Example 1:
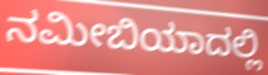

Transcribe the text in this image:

ನಮೀಬಿಯಾದಲ್ಲಿ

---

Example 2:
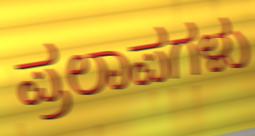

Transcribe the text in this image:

ಪ್ರಲಾಪಗಳು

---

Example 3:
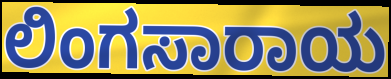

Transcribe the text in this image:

ಲಿಂಗಸಾರಾಯ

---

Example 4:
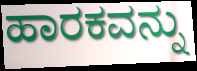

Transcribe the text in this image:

ಹಾರಕವನ್ನು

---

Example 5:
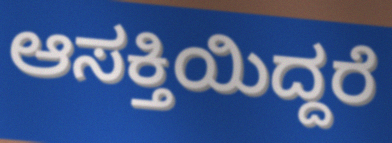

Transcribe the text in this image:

ಆಸಕ್ತಿಯಿದ್ದರೆ